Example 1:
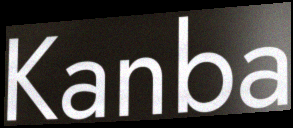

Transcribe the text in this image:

Kanba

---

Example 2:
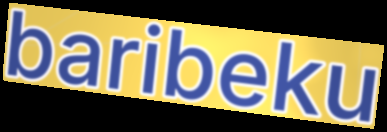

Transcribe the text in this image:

baribeku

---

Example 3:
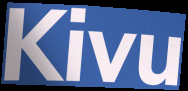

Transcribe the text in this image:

Kivu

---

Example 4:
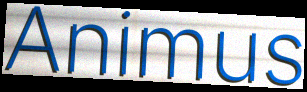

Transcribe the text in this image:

Animus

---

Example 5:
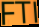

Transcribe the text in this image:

FTI